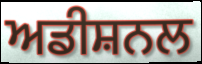
ਅਡੀਸ਼ਨਲ